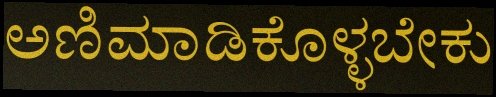
ಅಣಿಮಾಡಿಕೊಳ್ಳಬೇಕು